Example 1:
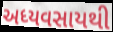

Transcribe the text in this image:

અધ્યવસાયથી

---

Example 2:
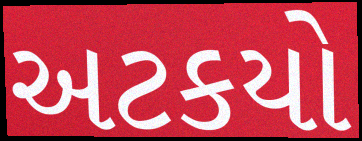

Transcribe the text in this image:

અટકયો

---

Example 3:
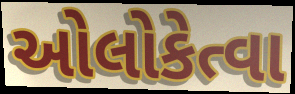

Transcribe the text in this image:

ઓલોકેત્વા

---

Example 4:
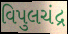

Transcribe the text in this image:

વિપુલચંદ્ર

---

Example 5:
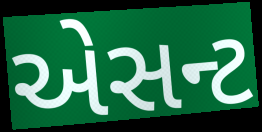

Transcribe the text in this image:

એસન્ટ